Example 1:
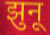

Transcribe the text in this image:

झुनू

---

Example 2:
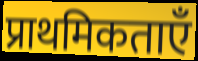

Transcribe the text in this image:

प्राथमिकताएँ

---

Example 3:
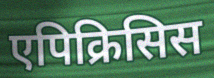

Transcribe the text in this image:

एपिक्रिसिस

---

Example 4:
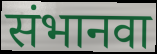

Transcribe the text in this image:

संभानवा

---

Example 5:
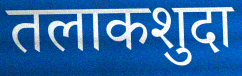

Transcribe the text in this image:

तलाकशुदा